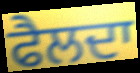
ਫੈਲਦਾ